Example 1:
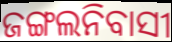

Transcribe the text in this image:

ଜଙ୍ଗଲନିବାସୀ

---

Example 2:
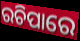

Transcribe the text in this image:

ରଚିପାରେ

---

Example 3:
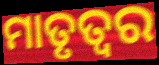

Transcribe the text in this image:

ମାତୃତ୍ୱର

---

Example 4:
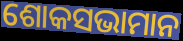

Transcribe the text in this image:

ଶୋକସଭାମାନ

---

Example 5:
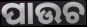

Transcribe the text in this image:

ପାଉଚ